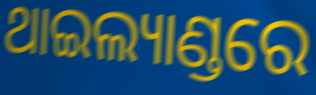
ଥାଇଲ୍ୟାଣ୍ଡରେ